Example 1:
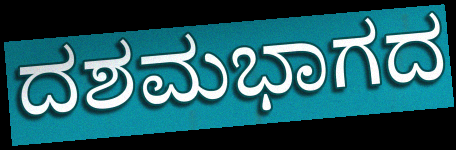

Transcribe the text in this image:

ದಶಮಭಾಗದ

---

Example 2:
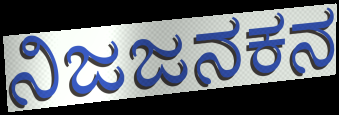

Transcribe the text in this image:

ನಿಜಜನಕನ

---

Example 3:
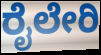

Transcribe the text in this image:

ರೈಲೇರಿ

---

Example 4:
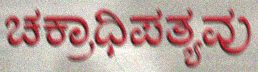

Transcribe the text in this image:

ಚಕ್ರಾಧಿಪತ್ಯವು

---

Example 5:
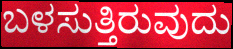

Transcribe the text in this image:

ಬಳಸುತ್ತಿರುವುದು